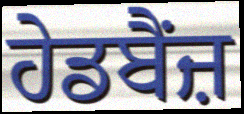
ਹੇਡਬੈਂਜ਼